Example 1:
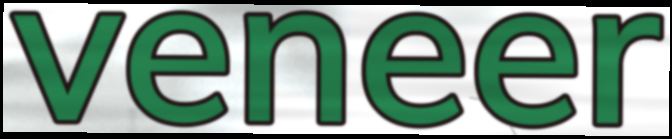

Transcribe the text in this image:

veneer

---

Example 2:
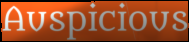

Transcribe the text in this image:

Auspicious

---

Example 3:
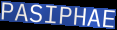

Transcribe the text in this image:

PASIPHAE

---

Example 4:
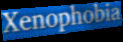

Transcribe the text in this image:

Xenophobia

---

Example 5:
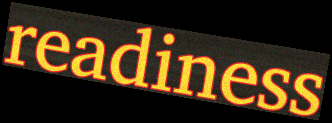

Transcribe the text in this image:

readiness